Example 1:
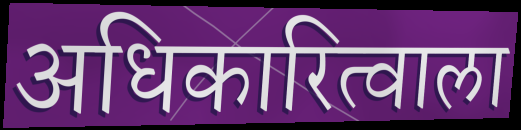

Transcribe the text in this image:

अधिकारित्वाला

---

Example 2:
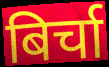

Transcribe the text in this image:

बिर्चा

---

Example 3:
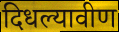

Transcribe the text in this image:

दिधल्यावीण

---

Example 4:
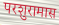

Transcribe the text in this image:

परशुरामास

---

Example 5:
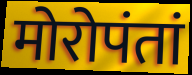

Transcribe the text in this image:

मोरोपंतां